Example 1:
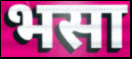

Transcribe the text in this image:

भसा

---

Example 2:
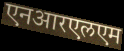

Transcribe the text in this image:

एनआरएलएम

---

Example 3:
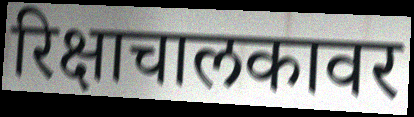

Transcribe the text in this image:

रिक्षाचालकावर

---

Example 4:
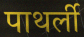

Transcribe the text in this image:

पाथर्ली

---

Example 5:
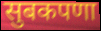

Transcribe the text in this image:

सुबकपणा